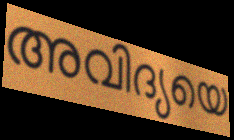
അവിദ്യയെ